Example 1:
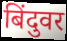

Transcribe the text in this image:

बिंदुवर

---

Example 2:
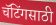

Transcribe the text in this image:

चॅटिंगसाठी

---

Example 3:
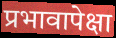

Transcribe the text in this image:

प्रभावापेक्षा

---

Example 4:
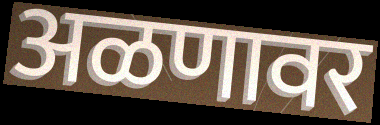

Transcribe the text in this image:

अळणावर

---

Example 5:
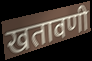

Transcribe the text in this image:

खतावणी